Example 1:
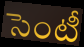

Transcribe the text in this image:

సెంటీ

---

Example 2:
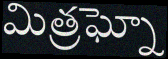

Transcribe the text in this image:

మిత్రఘ్నో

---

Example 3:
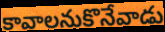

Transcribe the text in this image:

కావాలనుకొనేవాడు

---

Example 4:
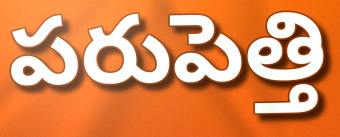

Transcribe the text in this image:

పరుపెత్తి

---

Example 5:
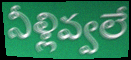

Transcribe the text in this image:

నీళ్లివ్వలే